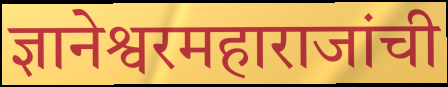
ज्ञानेश्वरमहाराजांची